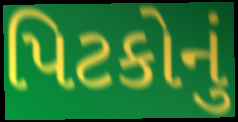
પિટકોનું